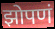
झोपणं